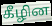
கீழின